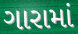
ગારામાં